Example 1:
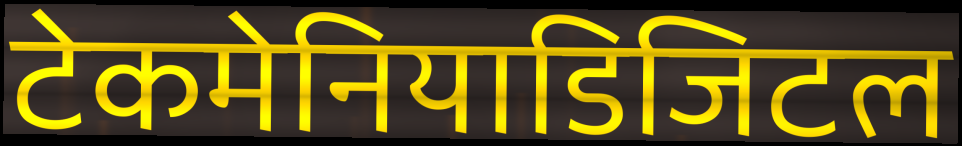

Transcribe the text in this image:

टेकमेनियाडिजिटल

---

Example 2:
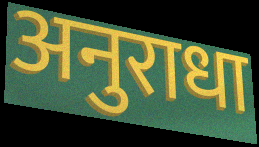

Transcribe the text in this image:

अनुराधा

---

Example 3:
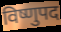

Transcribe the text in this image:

विष्णुपद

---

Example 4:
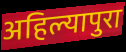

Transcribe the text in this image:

अहिल्यापुरा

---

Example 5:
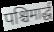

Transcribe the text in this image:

पश्चिमार्द्ध